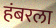
हंबरला